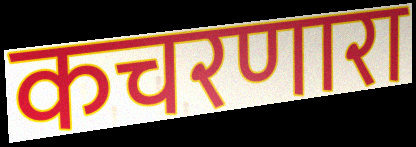
कचरणारा